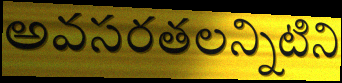
అవసరతలన్నిటిని